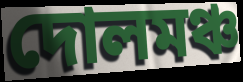
দোলমঞ্চ